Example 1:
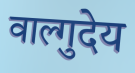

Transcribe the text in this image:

वाल्गुदेय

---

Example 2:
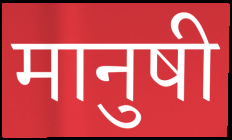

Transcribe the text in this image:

मानुषी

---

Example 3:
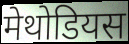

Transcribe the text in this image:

मेथोडियस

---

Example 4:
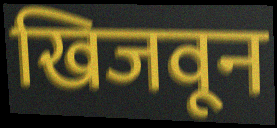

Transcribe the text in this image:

खिजवून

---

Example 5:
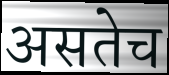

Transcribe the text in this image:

असतेच